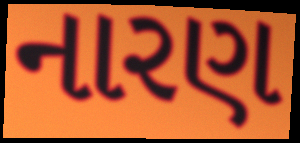
નારણ